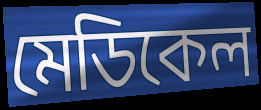
মেডিকেল